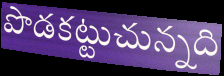
పొడకట్టుచున్నది